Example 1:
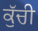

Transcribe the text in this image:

ਕੁੱਚੀ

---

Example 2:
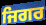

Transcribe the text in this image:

ਜਿਗਰ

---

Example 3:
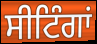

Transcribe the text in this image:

ਸੀਟਿੰਗਾਂ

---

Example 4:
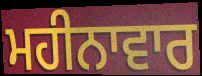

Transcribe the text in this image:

ਮਹੀਨਾਵਾਰ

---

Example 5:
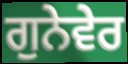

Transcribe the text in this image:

ਗੁਨੇਵੇਰ